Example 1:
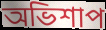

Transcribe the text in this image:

অভিশাপ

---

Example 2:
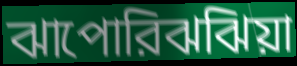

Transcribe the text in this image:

ঝাপোরিঝঝিয়া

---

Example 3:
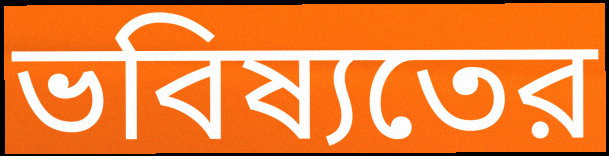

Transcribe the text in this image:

ভবিষ্যতের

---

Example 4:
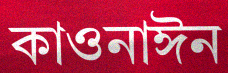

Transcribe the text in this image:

কাওনাঈন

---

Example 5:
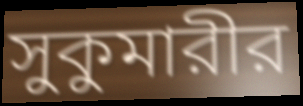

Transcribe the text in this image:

সুকুমারীর